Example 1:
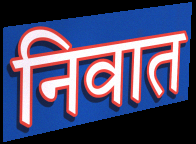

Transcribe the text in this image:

निवात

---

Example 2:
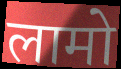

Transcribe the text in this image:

लामो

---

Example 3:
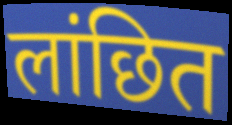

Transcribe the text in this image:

लांछित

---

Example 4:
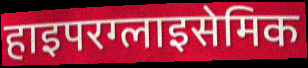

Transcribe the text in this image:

हाइपरग्लाइसेमिक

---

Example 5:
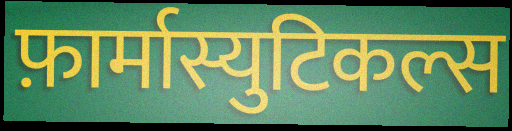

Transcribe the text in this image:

फ़ार्मास्युटिकल्स